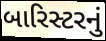
બારિસ્ટરનું